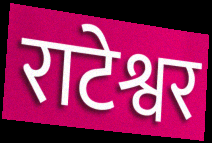
राटेश्वर